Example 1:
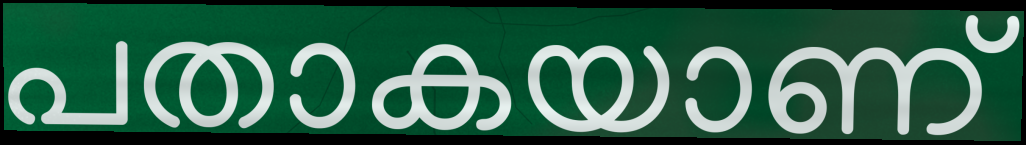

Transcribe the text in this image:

പതാകയാണ്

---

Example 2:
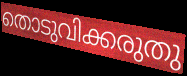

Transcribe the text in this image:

തൊടുവിക്കരുതു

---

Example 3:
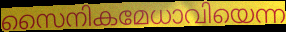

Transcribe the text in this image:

സൈനികമേധാവിയെന്ന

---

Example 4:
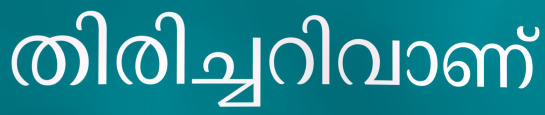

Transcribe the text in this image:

തിരിച്ചറിവാണ്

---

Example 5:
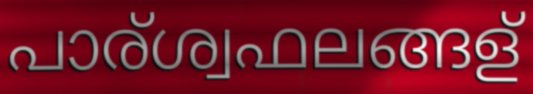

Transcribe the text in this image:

പാര്ശ്വഫലങ്ങള്